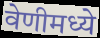
वेणीमध्ये